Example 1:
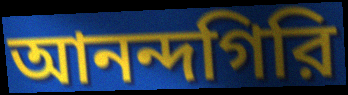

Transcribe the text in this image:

আনন্দগিরি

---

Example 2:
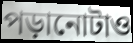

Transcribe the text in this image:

পড়ানোটাও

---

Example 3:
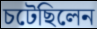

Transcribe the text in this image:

চটেছিলেন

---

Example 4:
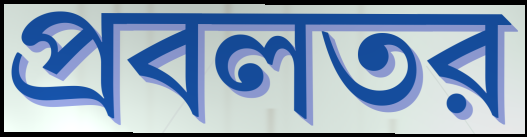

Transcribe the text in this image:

প্রবলতর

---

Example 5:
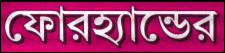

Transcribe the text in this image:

ফোরহ্যান্ডের